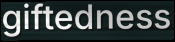
giftedness